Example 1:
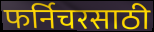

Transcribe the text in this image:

फर्निचरसाठी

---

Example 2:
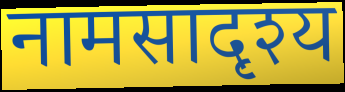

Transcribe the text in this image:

नामसादृश्य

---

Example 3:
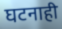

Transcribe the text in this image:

घटनाही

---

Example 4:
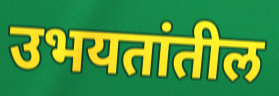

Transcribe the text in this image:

उभयतांतील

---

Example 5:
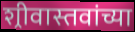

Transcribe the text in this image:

श्रीवास्तवांच्या